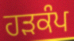
ਹੜਕੰਪ